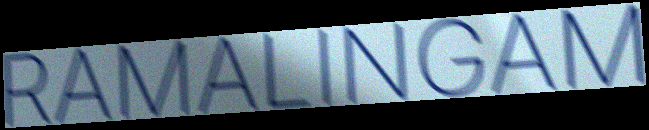
RAMALINGAM